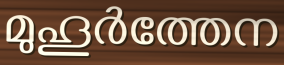
മുഹൂർത്തേന